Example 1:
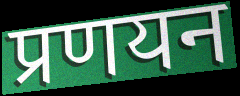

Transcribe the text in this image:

प्रणयन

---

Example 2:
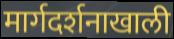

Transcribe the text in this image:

मार्गदर्शनाखाली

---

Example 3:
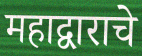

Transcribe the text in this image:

महाद्वाराचे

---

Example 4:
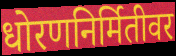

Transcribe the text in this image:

धोरणनिर्मितीवर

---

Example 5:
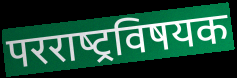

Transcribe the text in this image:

परराष्ट्रविषयक